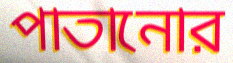
পাতানোর